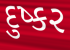
દુષ્કર